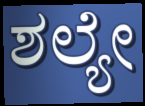
ಶಲ್ಯೇ